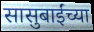
सासुबाईंच्या